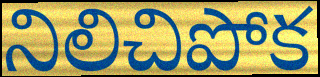
నిలిచిపోక